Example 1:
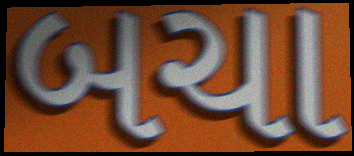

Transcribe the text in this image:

બચા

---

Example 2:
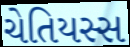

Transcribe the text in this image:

ચેતિયસ્સ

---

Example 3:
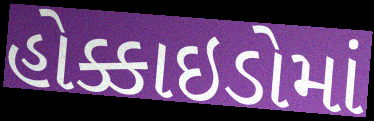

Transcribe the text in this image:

હોક્કાઇડોમાં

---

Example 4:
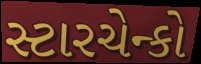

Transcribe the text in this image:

સ્ટારચેન્કો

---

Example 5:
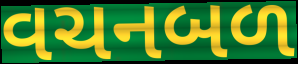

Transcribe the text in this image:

વચનબળ